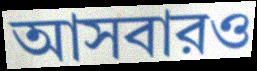
আসবারও